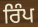
ਰਿੰਪ